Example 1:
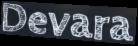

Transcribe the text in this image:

Devara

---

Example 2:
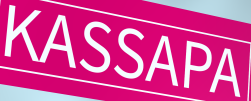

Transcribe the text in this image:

KASSAPA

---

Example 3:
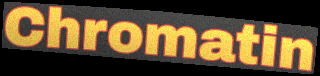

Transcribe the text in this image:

Chromatin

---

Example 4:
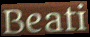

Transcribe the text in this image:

Beati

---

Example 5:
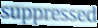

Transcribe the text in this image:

suppressed